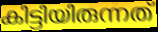
കിട്ടിയിരുന്നത്